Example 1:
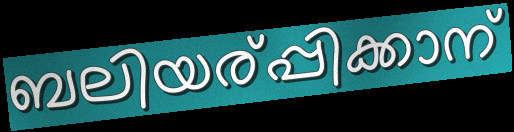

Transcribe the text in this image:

ബലിയര്പ്പിക്കാന്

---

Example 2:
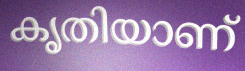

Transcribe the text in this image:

കൃതിയാണ്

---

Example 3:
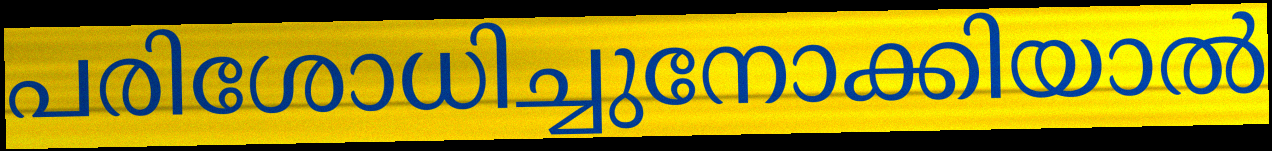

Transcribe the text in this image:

പരിശോധിച്ചുനോക്കിയാൽ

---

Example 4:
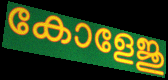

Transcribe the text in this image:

കോളേജു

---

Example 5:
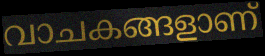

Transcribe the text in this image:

വാചകങ്ങളാണ്